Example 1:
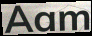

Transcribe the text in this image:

Aam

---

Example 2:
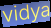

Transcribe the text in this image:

vidya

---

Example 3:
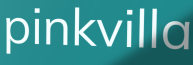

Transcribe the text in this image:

pinkvilla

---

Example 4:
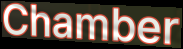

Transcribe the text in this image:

Chamber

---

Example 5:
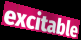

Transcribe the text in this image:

excitable